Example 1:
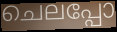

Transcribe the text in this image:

ചെലപ്പോ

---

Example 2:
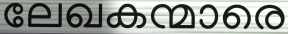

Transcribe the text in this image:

ലേഖകന്മാരെ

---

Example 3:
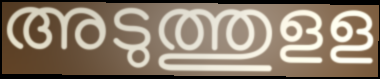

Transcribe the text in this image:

അടുത്തുളള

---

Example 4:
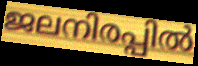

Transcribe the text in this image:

ജലനിരപ്പിൽ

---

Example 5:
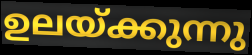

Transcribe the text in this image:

ഉലയ്ക്കുന്നു